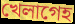
খেলাগেহ